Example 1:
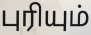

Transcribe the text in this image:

புரியும்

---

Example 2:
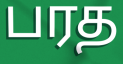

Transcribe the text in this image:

பரத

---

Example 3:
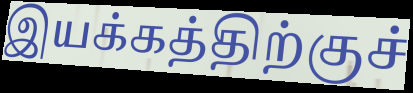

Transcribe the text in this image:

இயக்கத்திற்குச்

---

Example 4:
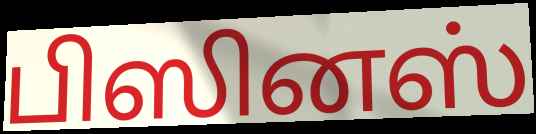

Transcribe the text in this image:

பிஸினஸ்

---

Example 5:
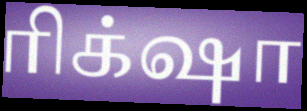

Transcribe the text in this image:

ரிக்‌ஷா